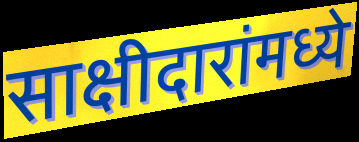
साक्षीदारांमध्ये